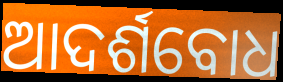
ଆଦର୍ଶବୋଧ